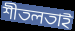
শীতলতাই